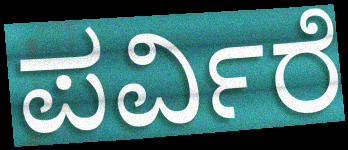
ಪರ್ವಿರೆ